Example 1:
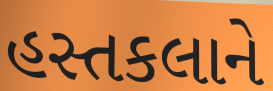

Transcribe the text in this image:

હસ્તકલાને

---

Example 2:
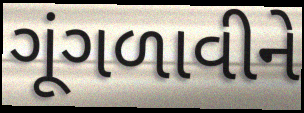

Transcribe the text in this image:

ગૂંગળાવીને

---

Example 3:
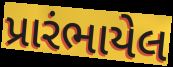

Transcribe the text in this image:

પ્રારંભાયેલ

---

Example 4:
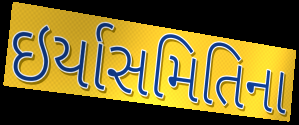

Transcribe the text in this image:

ઇર્યાસમિતિના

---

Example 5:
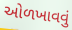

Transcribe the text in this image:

ઓળખાવવું